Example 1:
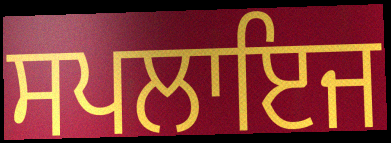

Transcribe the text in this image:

ਸਪਲਾਇਜ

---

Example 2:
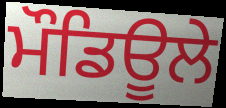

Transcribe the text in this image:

ਮੌਡਿਊਲੇ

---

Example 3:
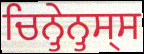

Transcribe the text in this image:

ਚਿਨ੍ਤੇਨ੍ਤਸ੍ਸ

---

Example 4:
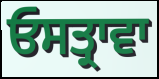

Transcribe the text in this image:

ਓਸਤ੍ਰਾਵਾ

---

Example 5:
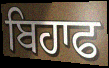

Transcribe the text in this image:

ਬਿਹਾਫ